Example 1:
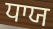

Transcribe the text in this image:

ਧਾਯ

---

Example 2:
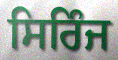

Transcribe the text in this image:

ਸਿਰਿੰਜ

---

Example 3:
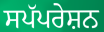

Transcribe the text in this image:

ਸਪੱਪਰੇਸ਼ਨ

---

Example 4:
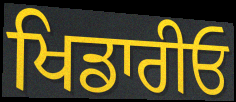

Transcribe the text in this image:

ਖਿਡਾਰੀਓ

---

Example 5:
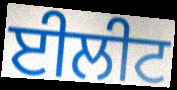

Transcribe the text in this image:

ਈਲੀਟ